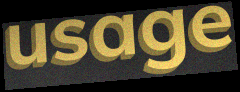
usage